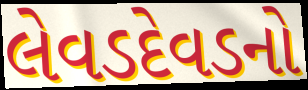
લેવડદેવડનો